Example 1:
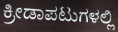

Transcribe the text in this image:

ಕ್ರೀಡಾಪಟುಗಳಲ್ಲಿ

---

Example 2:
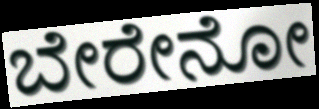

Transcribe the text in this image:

ಬೇರೇನೋ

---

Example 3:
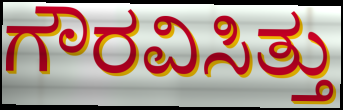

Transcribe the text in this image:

ಗೌರವಿಸಿತ್ತು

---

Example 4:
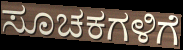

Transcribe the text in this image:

ಸೂಚಕಗಳಿಗೆ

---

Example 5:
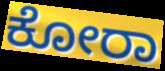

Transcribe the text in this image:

ಕೋರಾ